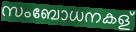
സംബോധനകള്